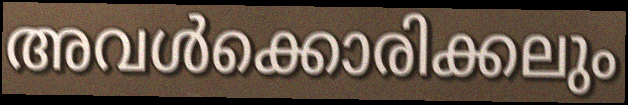
അവൾക്കൊരിക്കലും